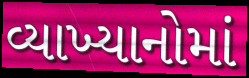
વ્યાખ્યાનોમાં